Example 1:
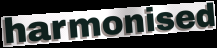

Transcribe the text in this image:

harmonised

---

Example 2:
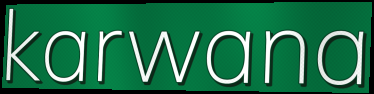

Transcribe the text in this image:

karwana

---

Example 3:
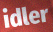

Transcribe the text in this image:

idler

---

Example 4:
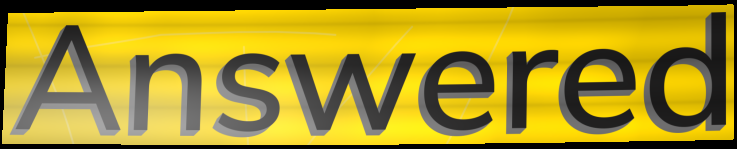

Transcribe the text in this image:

Answered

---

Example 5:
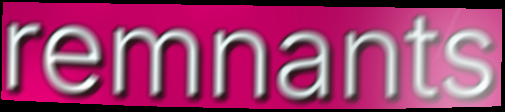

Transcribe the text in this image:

remnants